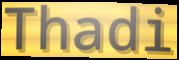
Thadi